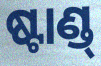
ଷ୍ଟାଣ୍ଡ୍